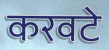
करवटे